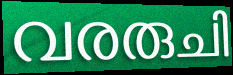
വരരുചി